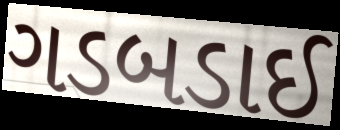
ગડબડાઈ